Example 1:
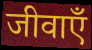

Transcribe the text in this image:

जीवाएँ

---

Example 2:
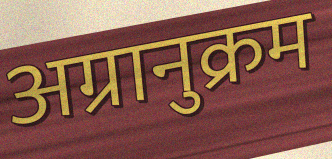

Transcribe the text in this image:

अग्रानुक्रम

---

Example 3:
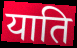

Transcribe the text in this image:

याति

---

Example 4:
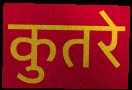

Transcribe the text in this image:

कुतरे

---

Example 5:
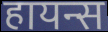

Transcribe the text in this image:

हायन्स